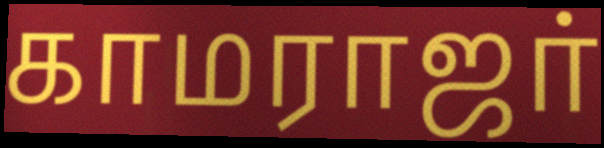
காமராஜர்